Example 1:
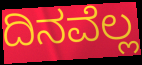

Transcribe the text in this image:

ದಿನವೆಲ್ಲ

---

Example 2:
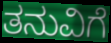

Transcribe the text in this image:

ತನುವಿಗೆ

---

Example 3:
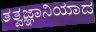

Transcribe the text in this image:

ತತ್ವಜ್ಞಾನಿಯಾದ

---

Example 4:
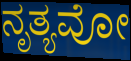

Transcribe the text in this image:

ನೃತ್ಯವೋ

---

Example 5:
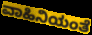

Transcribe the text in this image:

ವಾಹಿನಿಯಂತೆ